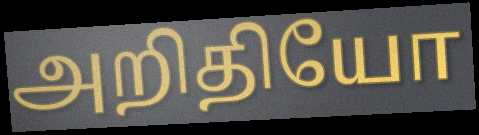
அறிதியோ